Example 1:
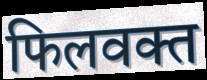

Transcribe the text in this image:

फिलवक्‍त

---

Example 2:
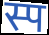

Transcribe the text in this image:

स्प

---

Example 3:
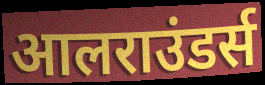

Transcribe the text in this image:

आलराउंडर्स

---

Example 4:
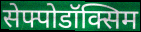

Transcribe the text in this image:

सेफ्पोडॉक्सिम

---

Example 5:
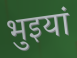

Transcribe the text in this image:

भुइयां